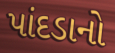
પાંદડાનો